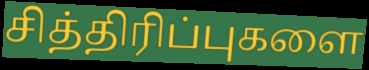
சித்திரிப்புகளை